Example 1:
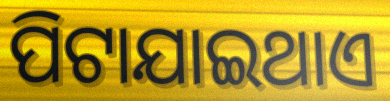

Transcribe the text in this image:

ପିଟାଯାଇଥାଏ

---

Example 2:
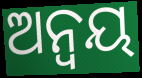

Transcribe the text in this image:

ଅନ୍ୱୟ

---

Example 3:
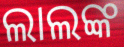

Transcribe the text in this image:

ଲାଲଙ୍କ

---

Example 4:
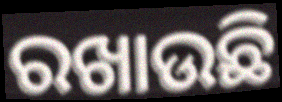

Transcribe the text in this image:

ରଖାଉଛି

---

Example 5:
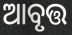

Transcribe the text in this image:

ଆବୃତ୍ତ